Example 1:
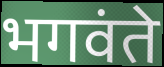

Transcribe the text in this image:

भगवंते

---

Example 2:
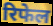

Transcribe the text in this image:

रिफेल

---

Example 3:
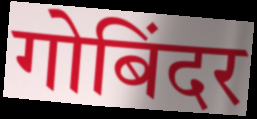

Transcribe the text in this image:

गोबिंदर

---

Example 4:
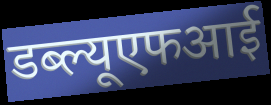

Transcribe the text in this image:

डब्ल्यूएफआई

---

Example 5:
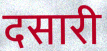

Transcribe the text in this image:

दसारी